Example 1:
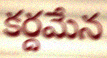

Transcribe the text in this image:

కర్దమేన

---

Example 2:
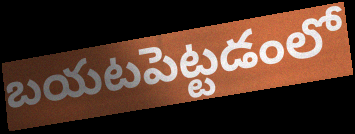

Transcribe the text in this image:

బయటపెట్టడంలో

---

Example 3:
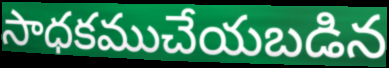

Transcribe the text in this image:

సాధకముచేయబడిన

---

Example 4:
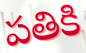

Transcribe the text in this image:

పతికి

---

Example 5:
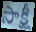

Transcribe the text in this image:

సాక్షీ